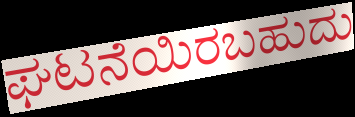
ಘಟನೆಯಿರಬಹುದು